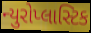
ન્યુરોપ્લાસ્ટિક